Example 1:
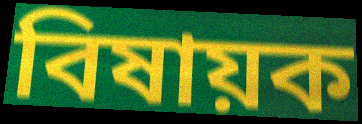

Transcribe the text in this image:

বিষায়ক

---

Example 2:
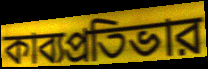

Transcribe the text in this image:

কাব্যপ্রতিভার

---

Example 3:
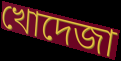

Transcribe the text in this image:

খোদেজা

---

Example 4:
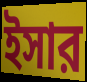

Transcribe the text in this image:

ইসার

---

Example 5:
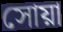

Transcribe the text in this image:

সোয়া